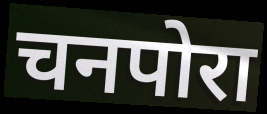
चनपोरा